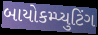
બાયોકમ્પ્યુટિંગ